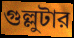
গুল্লুটার